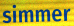
simmer